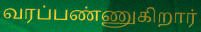
வரப்பண்ணுகிறார்